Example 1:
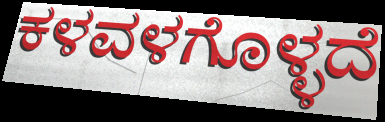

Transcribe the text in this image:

ಕಳವಳಗೊಳ್ಳದೆ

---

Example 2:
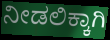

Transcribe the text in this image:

ನೀಡಲಿಕ್ಕಾಗಿ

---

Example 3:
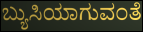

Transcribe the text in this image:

ಬ್ಯುಸಿಯಾಗುವಂತೆ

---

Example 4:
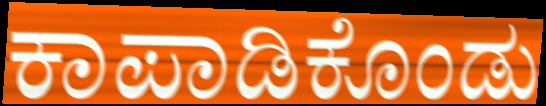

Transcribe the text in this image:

ಕಾಪಾಡಿಕೊಂಡು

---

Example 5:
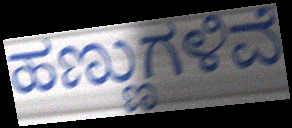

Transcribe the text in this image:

ಹಣ್ಣುಗಳಿವೆ